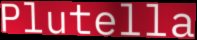
Plutella